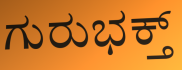
ಗುರುಭಕ್ತ್